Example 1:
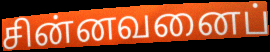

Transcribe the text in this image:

சின்னவனைப்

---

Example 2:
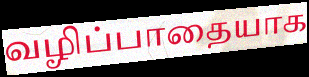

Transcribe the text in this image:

வழிப்பாதையாக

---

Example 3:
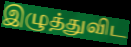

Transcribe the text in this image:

இழுத்துவிட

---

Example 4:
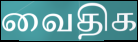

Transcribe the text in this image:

வைதிக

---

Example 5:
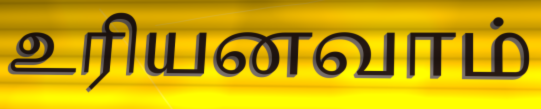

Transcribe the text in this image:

உரியனவாம்